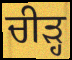
ਚੀੜ੍ਹ